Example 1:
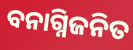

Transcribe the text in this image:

ବନାଗ୍ନିଜନିତ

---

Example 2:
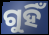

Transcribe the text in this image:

ଗୁହିଁ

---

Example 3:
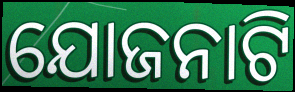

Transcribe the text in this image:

ଯୋଜନାଟି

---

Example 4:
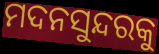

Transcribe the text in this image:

ମଦନସୁନ୍ଦରକୁ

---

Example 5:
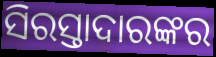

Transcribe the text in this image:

ସିରସ୍ତାଦାରଙ୍କର